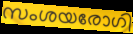
സംശയരോഗി